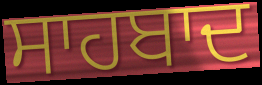
ਸਾਹਬਾਦ